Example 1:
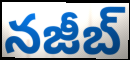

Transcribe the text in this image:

నజీబ్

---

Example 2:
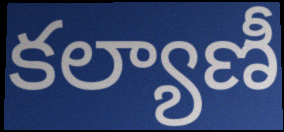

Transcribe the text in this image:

కల్యాణీ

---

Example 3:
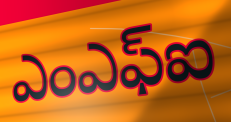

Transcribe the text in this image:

ఎంఎఫ్ఐ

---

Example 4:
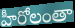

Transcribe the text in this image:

హీరోలంతా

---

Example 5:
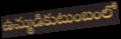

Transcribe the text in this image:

ఉమ్మడికుటుంబంలో